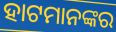
ହାଟମାନଙ୍କର